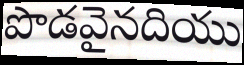
పొడవైనదియు